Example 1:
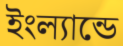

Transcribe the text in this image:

ইংল্যান্ডে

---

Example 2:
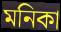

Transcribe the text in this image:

মনিকা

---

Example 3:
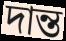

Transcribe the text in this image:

দান্ত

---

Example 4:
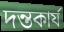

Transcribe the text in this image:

দন্তকার্য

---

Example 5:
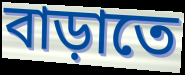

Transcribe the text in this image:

বাড়াতে